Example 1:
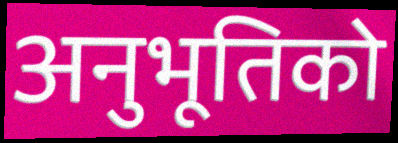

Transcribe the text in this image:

अनुभूतिको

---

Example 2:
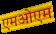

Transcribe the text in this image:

एमओएम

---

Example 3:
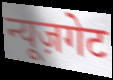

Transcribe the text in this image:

न्यूज़गेट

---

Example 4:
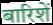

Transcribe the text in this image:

बारिशें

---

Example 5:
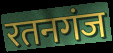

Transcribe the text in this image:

रतनगंज